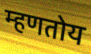
म्हणतोय